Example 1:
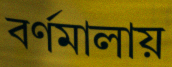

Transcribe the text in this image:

বর্ণমালায়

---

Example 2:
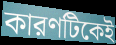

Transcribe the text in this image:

কারণটিকেই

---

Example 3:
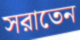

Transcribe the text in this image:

সরাতেন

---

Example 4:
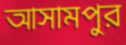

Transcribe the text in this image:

আসামপুর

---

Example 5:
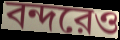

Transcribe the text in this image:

বন্দরেও